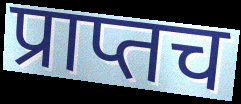
प्राप्तच